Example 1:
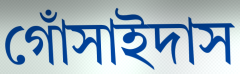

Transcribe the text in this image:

গোঁসাইদাস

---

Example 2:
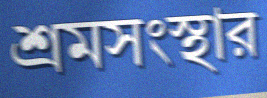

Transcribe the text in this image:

শ্রমসংস্থার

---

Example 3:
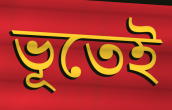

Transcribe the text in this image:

ভূতেই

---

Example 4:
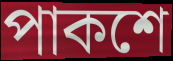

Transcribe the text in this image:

পাকশে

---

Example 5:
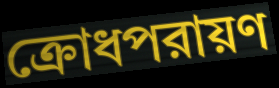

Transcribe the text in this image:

ক্রোধপরায়ণ